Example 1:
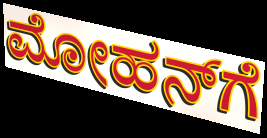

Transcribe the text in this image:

ಮೋಹನ್‌ಗೆ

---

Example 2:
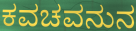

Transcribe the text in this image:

ಕವಚವನುನ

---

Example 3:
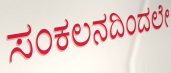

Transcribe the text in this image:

ಸಂಕಲನದಿಂದಲೇ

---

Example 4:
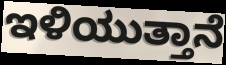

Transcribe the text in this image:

ಇಳಿಯುತ್ತಾನೆ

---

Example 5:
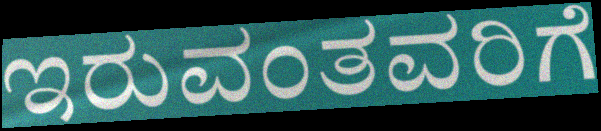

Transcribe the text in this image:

ಇರುವಂತವರಿಗೆ